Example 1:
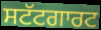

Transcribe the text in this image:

ਸਟੱਟਗਾਰਟ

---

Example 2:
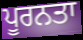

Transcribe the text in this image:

ਪੂਰਨਤਾ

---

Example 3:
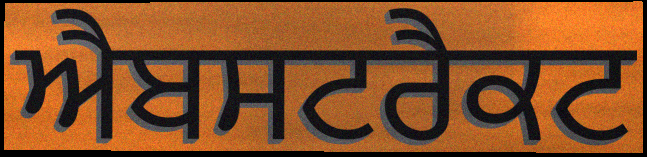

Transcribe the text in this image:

ਐਬਸਟਰੈਕਟ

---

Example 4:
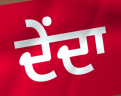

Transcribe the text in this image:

ਦੇਂਦਾ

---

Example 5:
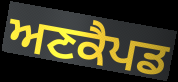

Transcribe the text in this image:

ਅਣਕੈਪਡ